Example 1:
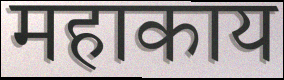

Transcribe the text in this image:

महाकाय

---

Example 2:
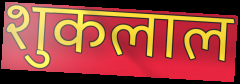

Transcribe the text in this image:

शुकलाल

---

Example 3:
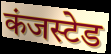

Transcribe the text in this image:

कंजस्टेड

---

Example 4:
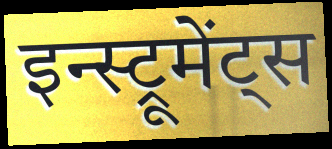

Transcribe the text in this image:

इन्स्ट्रूमेंट्स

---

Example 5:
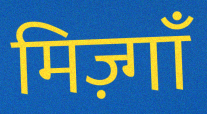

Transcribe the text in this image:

मिज़्गाँ